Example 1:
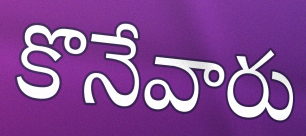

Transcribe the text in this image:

కొనేవారు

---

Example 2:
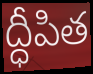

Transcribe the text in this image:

ద్ధీపిత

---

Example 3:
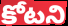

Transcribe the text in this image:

కోటని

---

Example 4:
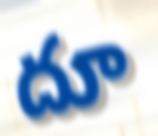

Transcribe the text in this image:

దూ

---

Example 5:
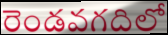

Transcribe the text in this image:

రెండవగదిలో